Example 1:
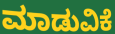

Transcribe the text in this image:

ಮಾಡುವಿಕೆ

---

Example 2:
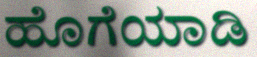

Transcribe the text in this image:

ಹೊಗೆಯಾಡಿ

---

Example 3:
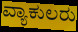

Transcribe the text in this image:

ವ್ಯಾಕುಲರು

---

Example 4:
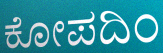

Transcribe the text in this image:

ಕೋಪದಿಂ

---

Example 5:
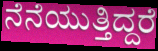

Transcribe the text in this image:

ನೆನೆಯುತ್ತಿದ್ದರೆ